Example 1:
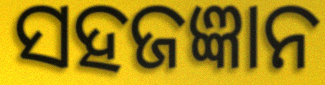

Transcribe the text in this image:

ସହଜଜ୍ଞାନ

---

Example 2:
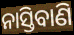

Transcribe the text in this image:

ନାସ୍ତିବାଣି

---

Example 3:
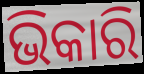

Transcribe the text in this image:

ଭିକାରି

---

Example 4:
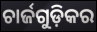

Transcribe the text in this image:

ଚାର୍ଜଗୁଡ଼ିକର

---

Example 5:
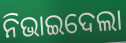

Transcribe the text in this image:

ନିଭାଇଦେଲା